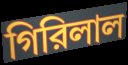
গিরিলাল